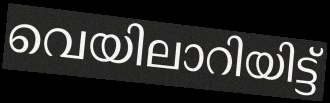
വെയിലാറിയിട്ട്